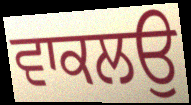
ਵਾਕਲਉ